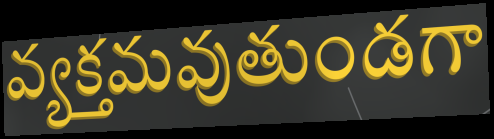
వ్యక్తమవుతుండగా